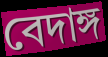
বেদাঙ্গ